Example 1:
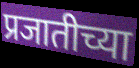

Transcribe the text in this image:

प्रजातीच्या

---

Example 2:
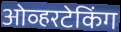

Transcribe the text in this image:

ओव्हरटेकिंग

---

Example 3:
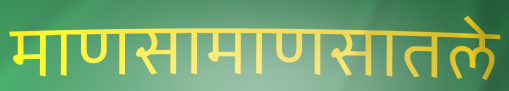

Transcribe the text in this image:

माणसामाणसातले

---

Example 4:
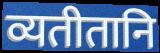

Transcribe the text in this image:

व्यतीतानि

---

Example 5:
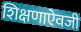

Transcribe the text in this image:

शिक्षणाऐवजी